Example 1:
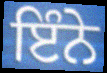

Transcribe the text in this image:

ਇੰਨੇ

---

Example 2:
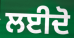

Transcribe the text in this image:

ਲਈਦੋ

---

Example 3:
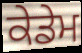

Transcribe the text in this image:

ਕੇਡੇਮ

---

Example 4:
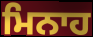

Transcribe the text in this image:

ਮਿਨਾਹ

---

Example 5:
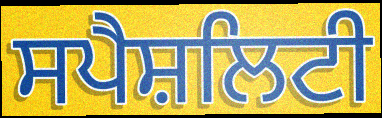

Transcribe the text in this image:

ਸਪੈਸ਼ਲਿਟੀ